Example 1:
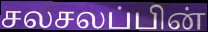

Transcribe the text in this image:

சலசலப்பின்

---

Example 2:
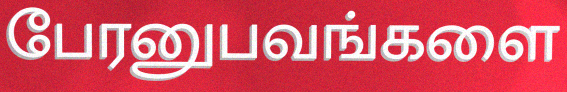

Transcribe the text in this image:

பேரனுபவங்களை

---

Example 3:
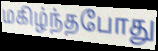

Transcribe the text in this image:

மகிழ்ந்தபோது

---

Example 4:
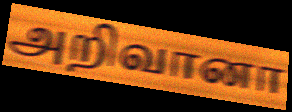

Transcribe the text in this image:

அறிவானா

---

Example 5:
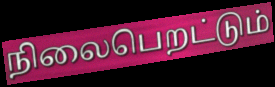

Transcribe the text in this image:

நிலைபெறட்டும்